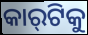
କାର୍‍ଟିକୁ